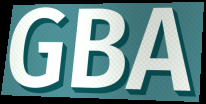
GBA